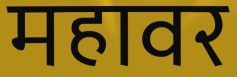
महावर